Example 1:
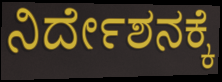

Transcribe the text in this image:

ನಿರ್ದೇಶನಕ್ಕೆ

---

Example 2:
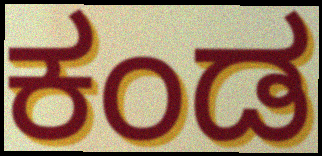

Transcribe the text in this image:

ಕಂಡ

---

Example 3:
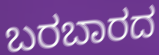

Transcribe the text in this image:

ಬರಬಾರದ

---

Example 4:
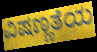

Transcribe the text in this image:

ವಿಷಣ್ಣತೆಯ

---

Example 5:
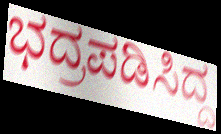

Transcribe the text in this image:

ಭದ್ರಪಡಿಸಿದ್ದ